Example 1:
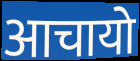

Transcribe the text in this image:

आचायो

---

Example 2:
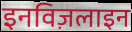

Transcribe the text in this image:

इनविज़लाइन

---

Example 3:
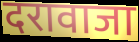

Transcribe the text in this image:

दरावाजा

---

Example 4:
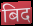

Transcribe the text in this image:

बिद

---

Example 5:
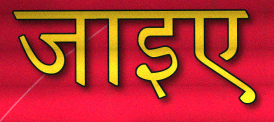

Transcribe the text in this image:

जाइए